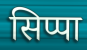
सिप्पा